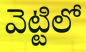
వెట్టిలో